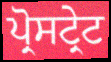
ਪ੍ਰੋਸਟ੍ਰੇਟ